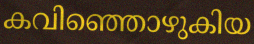
കവിഞ്ഞൊഴുകിയ